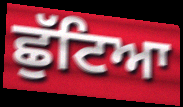
ਛੁੱਟਿਆ